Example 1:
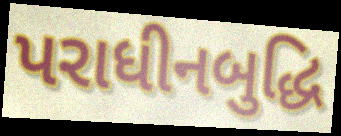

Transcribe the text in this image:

પરાધીનબુદ્ધિ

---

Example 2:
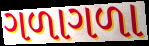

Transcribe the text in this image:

ગળાગળા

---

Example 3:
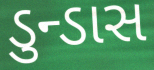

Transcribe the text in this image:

ડુન્ડાસ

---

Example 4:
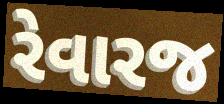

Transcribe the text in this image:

રેવારજ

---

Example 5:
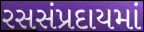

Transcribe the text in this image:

રસસંપ્રદાયમાં